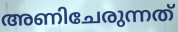
അണിചേരുന്നത്